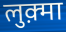
लुक़्मा